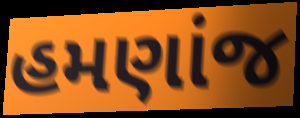
હમણાંજ